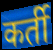
कर्ती